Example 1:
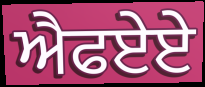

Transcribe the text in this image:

ਐਫਏਏ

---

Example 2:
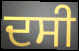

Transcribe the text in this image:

ਦਸੀ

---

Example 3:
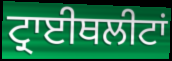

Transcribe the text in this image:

ਟ੍ਰਾਈਥਲੀਟਾਂ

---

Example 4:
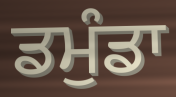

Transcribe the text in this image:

ਡਮੁੰਡਾ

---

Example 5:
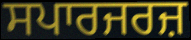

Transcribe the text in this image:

ਸਪਾਰਜਰਜ਼